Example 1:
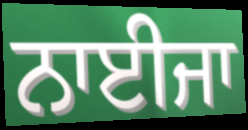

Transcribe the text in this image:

ਨਾਈਜਾ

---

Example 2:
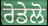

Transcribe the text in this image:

ਰੋਡੇਲੋ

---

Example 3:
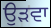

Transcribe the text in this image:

ਉੜਵਾ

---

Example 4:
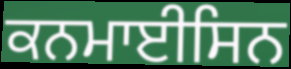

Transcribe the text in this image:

ਕਨਮਾਈਸਿਨ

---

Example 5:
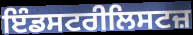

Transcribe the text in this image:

ਇੰਡਸਟਰੀਲਿਸਟਜ਼